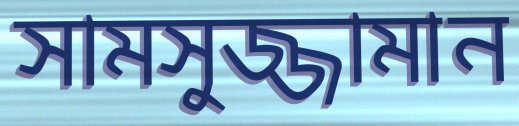
সামসুজ্জামান